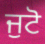
ਜੁਟੋ